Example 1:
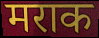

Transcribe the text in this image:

मराक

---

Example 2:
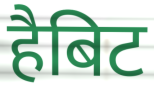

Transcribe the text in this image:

हैबिट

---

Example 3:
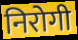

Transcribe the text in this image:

निरोगी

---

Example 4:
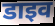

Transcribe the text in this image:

डाइव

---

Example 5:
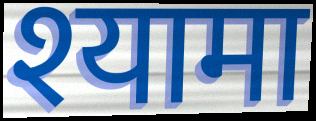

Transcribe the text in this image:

श्‍यामा